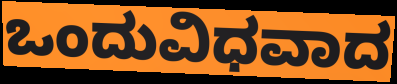
ಒಂದುವಿಧವಾದ